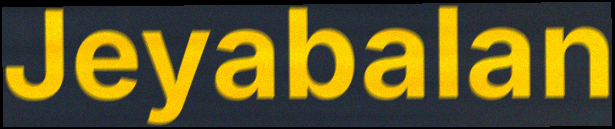
Jeyabalan